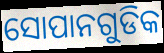
ସୋପାନଗୁଡିକ